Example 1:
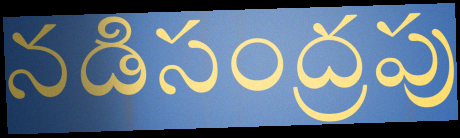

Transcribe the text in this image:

నడిసంద్రపు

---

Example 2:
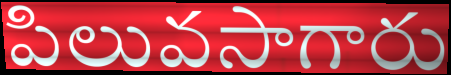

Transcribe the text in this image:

పిలువసాగారు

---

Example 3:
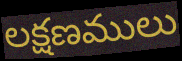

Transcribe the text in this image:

లక్షణములు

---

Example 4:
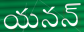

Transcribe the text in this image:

యనన్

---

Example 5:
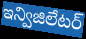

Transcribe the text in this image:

ఇన్విజిలేటర్